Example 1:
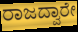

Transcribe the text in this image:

ರಾಜದ್ವಾರೇ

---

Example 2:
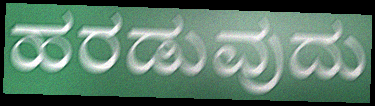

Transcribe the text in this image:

ಹರಡುವುದು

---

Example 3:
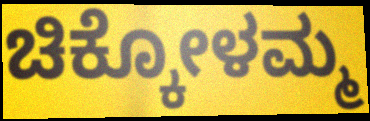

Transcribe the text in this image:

ಚಿಕ್ಕೋಳಮ್ಮ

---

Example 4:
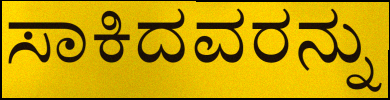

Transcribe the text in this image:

ಸಾಕಿದವರನ್ನು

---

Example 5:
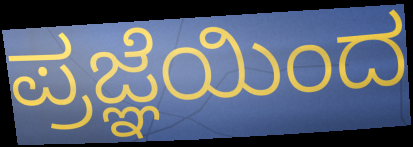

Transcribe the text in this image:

ಪ್ರಜ್ಞೆಯಿಂದ